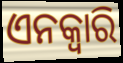
ଏନକ୍ଵାରି